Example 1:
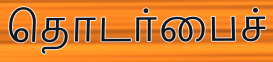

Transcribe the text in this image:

தொடர்பைச்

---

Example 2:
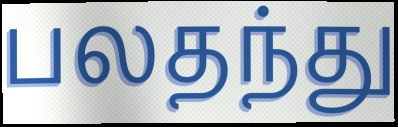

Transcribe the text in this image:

பலதந்து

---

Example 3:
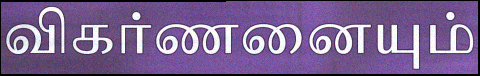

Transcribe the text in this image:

விகர்ணனையும்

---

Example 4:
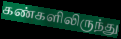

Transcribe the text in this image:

கண்களிலிருந்து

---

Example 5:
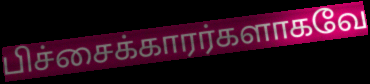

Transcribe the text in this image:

பிச்சைக்காரர்களாகவே